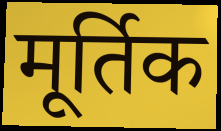
मूर्तिक